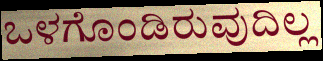
ಒಳಗೊಂಡಿರುವುದಿಲ್ಲ